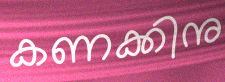
കണക്കിനു